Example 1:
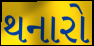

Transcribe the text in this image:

થનારો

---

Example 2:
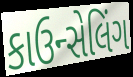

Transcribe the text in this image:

કાઉન્સેલિંગ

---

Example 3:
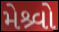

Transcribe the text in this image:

મેશ્ર્વો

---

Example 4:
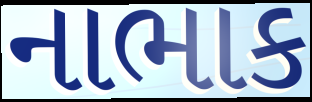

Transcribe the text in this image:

નાભાક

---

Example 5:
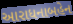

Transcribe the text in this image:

આરાધનાબહેન